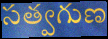
సత్వగుణ